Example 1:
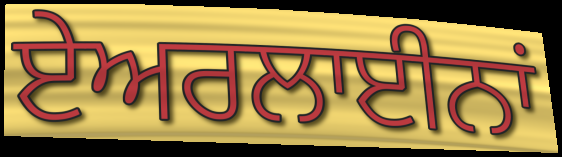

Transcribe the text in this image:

ਏਅਰਲਾਈਨਾਂ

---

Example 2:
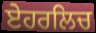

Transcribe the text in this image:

ਏਹਰਲਿਚ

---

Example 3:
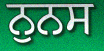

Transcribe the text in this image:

ਨੁਨਸ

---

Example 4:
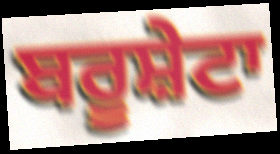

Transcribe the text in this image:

ਬਰੂਸ਼ੇਟਾ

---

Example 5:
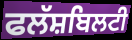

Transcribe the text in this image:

ਫਲੱਸ਼ਬਿਲਟੀ